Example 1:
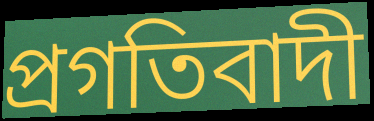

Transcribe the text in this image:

প্রগতিবাদী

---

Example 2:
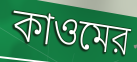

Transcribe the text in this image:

কাওমের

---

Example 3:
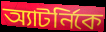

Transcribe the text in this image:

অ্যাটর্নিকে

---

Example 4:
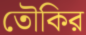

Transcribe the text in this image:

তৌকির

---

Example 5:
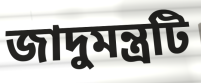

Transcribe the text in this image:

জাদুমন্ত্রটি